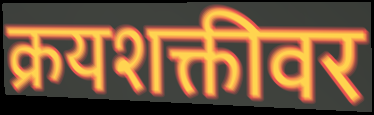
क्रयशक्तीवर